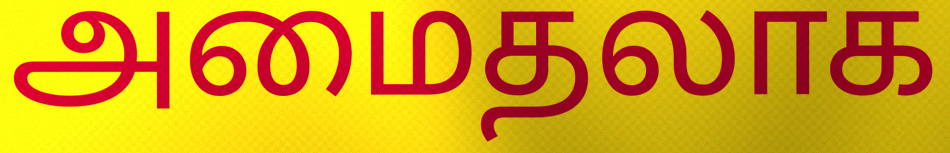
அமைதலாக